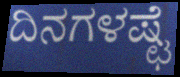
ದಿನಗಳಷ್ಟೆ